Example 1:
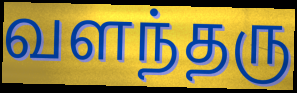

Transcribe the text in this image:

வளந்தரு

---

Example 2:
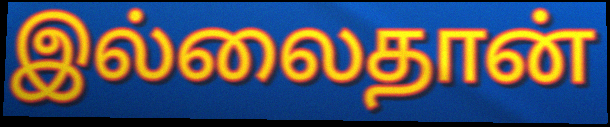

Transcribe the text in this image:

இல்லைதான்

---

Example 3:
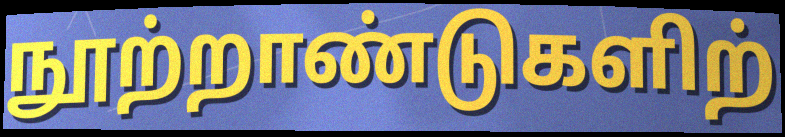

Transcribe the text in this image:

நூற்றாண்டுகளிற்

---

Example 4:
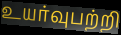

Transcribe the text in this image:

உயர்வுபற்றி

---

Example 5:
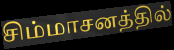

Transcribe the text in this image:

சிம்மாசனத்தில்